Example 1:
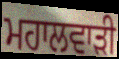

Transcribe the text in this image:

ਮਹਾਲਵਾੜੀ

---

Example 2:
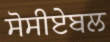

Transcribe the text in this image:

ਸੋਸੀਏਬਲ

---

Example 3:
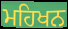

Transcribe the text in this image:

ਮਹਿਖਨ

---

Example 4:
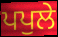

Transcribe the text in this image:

ਪਪੁਲੇ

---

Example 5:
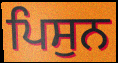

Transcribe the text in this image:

ਪਿਸੁਨ